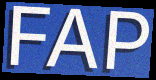
FAP